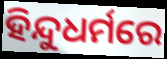
ହିନ୍ଦୁଧର୍ମରେ